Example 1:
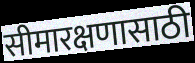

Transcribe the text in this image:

सीमारक्षणासाठी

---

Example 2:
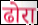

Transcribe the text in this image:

ढोरा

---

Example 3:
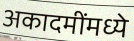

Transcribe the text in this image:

अकादमींमध्ये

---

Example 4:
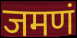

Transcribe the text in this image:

जमणं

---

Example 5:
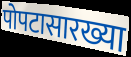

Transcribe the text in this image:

पोपटासारख्या